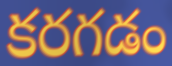
కరగడం